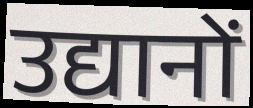
उद्यानों